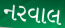
નરવાલ